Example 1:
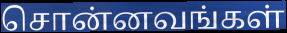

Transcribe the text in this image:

சொன்னவங்கள்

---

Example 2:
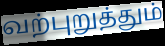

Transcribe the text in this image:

வற்புறுத்தும்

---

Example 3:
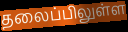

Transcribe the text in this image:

தலைப்பிலுள்ள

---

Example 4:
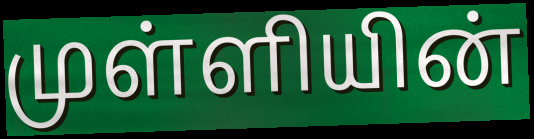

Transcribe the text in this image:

முள்ளியின்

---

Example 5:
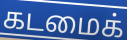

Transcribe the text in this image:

கடமைக்